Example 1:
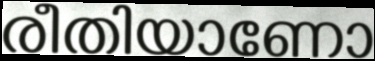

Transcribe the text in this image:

രീതിയാണോ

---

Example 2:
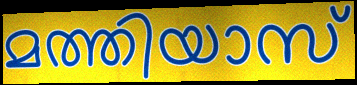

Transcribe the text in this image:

മത്തിയാസ്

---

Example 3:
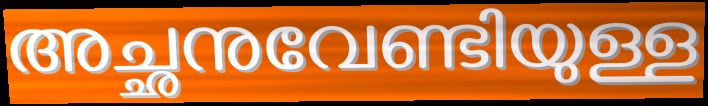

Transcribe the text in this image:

അച്ഛനുവേണ്ടിയുള്ള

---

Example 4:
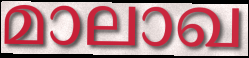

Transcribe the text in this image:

മാലാഖ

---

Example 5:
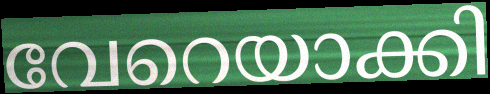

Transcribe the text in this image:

വേറെയാക്കി